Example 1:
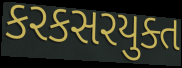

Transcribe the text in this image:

કરકસરયુક્ત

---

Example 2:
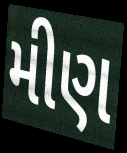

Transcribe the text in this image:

મીણ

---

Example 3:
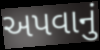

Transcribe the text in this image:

અપવાનું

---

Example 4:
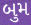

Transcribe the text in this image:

બુમ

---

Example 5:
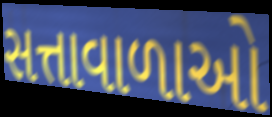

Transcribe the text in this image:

સત્તાવાળાઓ